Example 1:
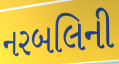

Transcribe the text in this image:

નરબલિની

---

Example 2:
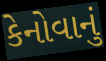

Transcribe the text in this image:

કેનોવાનું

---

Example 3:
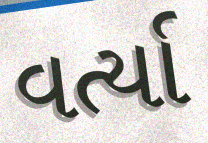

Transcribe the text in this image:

વર્ત્યા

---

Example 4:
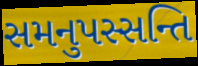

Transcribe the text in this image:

સમનુપસ્સન્તિ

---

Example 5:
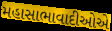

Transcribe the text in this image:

મહાસાભાવાદીઓએ